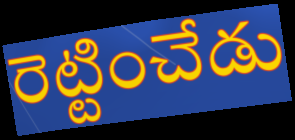
రెట్టించేడు